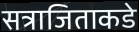
सत्राजिताकडे